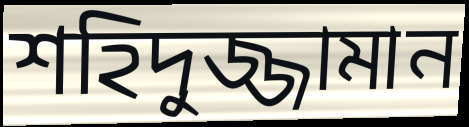
শহিদুজ্জামান